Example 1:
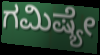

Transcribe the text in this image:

ಗಮಿಷ್ಯೇ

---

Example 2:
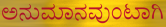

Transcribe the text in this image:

ಅನುಮಾನವುಂಟಾಗಿ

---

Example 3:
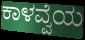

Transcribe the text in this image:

ಕಾಳವ್ವೆಯ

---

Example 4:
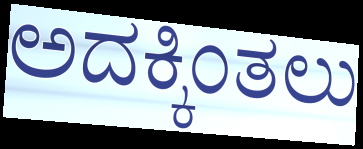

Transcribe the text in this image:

ಅದಕ್ಕಿಂತಲು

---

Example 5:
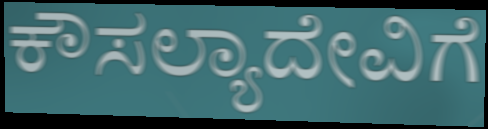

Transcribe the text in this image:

ಕೌಸಲ್ಯಾದೇವಿಗೆ